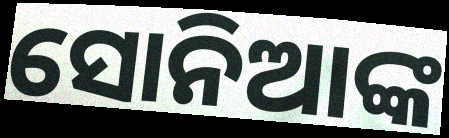
ସୋନିଆଙ୍କ